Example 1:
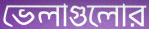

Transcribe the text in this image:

ভেলাগুলোর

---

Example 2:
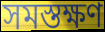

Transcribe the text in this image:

সমস্তক্ষণ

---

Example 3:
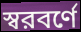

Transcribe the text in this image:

স্বরবর্ণে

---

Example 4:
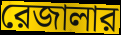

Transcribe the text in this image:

রেজালার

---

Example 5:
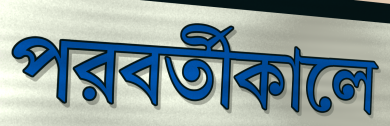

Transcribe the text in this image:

পরবর্তীকালে